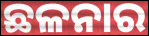
ଛଳନାର